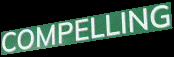
COMPELLING